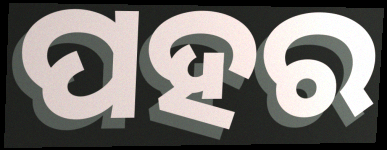
ପହର